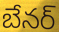
బేనర్